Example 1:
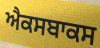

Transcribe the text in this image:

ਐਕਸਬਾਕਸ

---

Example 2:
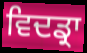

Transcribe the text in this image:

ਵਿਦਡ੍ਰਾ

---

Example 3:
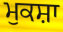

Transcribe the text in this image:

ਮੁਕਸ਼ਾ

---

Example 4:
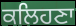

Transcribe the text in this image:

ਕਲਿਹਣਾ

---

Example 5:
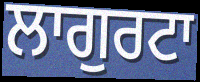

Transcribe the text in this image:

ਲਾਗੁਰਟਾ